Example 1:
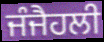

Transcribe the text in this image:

ਜੰਜੈਹਲੀ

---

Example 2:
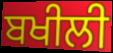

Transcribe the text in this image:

ਬਖੀਲੀ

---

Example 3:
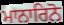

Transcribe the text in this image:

ਮਾਨਾਰਿਨੋ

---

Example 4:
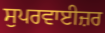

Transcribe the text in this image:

ਸੁਪਰਵਾਈਜ਼ਰ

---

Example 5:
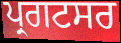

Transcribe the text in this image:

ਪ੍ਰਗਟਸਰ